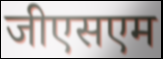
जीएसएम